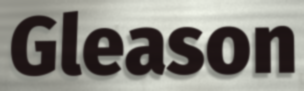
Gleason